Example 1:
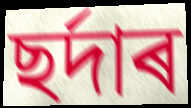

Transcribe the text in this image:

ছৰ্দাৰ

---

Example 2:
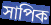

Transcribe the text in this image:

সাপিক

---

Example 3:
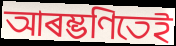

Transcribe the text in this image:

আৰম্ভণিতেই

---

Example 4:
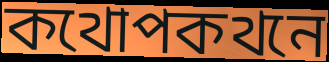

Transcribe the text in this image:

কথোপকথনে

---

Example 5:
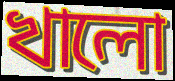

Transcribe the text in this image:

খালো